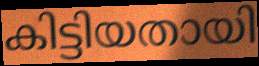
കിട്ടിയതായി